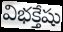
విభక్తేషు